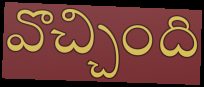
వొచ్చింది